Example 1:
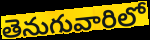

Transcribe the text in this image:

తెనుగువారిలో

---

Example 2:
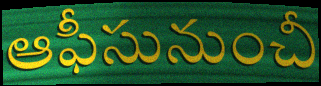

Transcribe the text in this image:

ఆఫీసునుంచీ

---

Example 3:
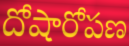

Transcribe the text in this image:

దోషారోపణ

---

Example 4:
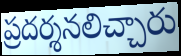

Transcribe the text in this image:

ప్రదర్శనలిచ్చారు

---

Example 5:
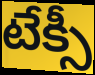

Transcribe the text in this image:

టేక్సీ